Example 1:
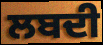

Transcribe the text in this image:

ਲਬਦੀ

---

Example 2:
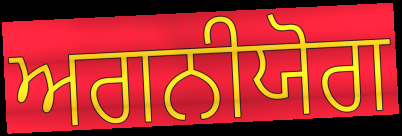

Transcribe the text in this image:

ਅਗਨੀਯੋਗ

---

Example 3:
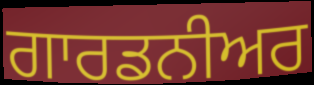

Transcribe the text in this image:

ਗਾਰਡਨੀਅਰ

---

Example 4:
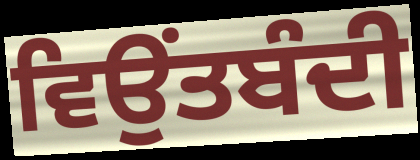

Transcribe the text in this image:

ਵਿਉਂਤਬੰਦੀ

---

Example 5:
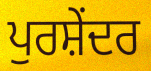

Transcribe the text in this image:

ਪੁਰਸ਼ੇਂਦਰ